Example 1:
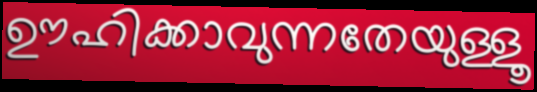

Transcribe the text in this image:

ഊഹിക്കാവുന്നതേയുള്ളൂ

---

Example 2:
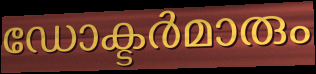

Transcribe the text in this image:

ഡോക്ടർമാരും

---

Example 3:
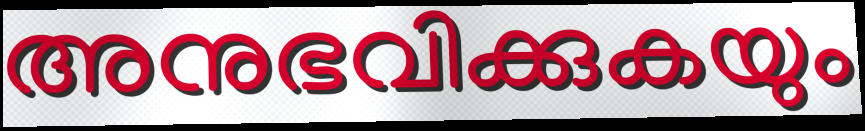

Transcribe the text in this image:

അനുഭവിക്കുകയും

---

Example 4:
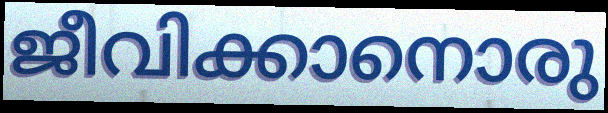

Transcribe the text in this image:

ജീവിക്കാനൊരു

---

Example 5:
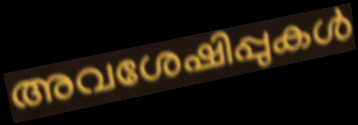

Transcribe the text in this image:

അവശേഷിപ്പുകൾ